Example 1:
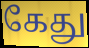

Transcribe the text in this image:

கேது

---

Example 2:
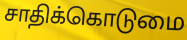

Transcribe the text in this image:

சாதிக்கொடுமை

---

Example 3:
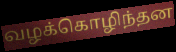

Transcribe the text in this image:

வழக்கொழிந்தன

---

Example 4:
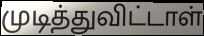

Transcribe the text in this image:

முடித்துவிட்டாள்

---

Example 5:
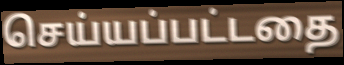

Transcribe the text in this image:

செய்யப்பட்டதை